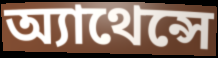
অ্যাথেন্সে